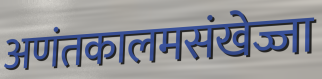
अणंतकालमसंखेज्जा